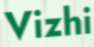
Vizhi